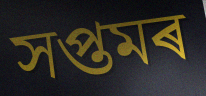
সপ্তমৰ